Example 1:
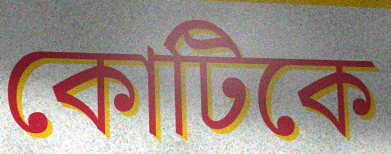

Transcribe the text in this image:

কোটিকে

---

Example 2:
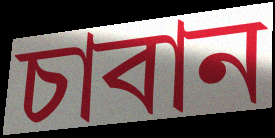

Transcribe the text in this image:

চাবান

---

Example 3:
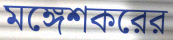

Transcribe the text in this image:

মঙ্গেশকরের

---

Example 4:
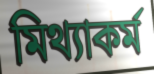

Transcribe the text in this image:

মিথ্যাকর্ম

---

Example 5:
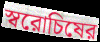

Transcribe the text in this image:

স্বরোচিষের